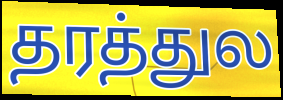
தரத்துல